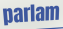
parlam